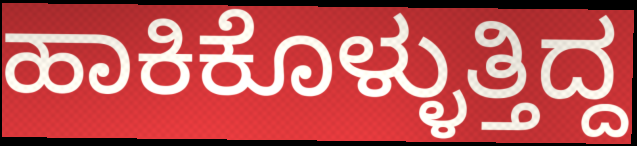
ಹಾಕಿಕೊಳ್ಳುತ್ತಿದ್ದ